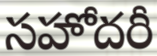
సహోదరీ